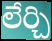
లేర్చి